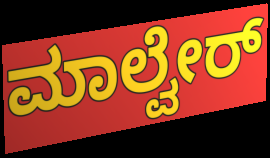
ಮಾಲ್ವೇರ್